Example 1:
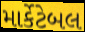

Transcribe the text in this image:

માર્કેટેબલ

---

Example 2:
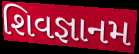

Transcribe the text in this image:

શિવજ્ઞાનમ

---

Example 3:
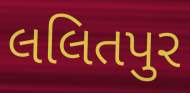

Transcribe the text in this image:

લલિતપુર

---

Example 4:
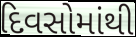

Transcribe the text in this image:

દિવસોમાંથી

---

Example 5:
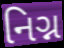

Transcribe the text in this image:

નિગ્ન